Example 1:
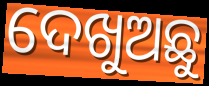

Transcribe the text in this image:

ଦେଖୁଅଛୁ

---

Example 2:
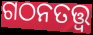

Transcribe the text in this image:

ଗଠନତତ୍ତ୍ୱ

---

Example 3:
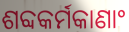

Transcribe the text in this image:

ଶବ୍ଦକର୍ମକାଣାଂ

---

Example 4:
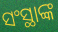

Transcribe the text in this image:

ସଂସ୍ଥାଙ୍କ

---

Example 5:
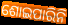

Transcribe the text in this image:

ଶୋଇପାରିନି